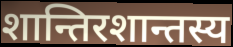
शान्तिरशान्तस्य